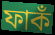
ফাকঁ